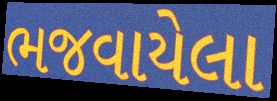
ભજવાયેલા